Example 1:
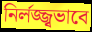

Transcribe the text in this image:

নির্লজ্জ্বভাবে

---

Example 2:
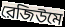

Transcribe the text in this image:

রেজিউমে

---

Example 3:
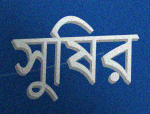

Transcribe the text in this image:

সুষির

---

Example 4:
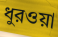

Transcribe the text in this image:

ধুরওয়া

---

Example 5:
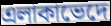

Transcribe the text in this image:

এলাকাভেদে